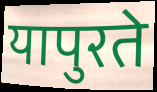
यापुरते